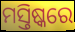
ମସ୍ତିଷ୍କରେ